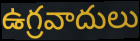
ఉగ్రవాదులు